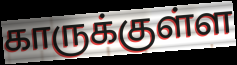
காருக்குள்ள